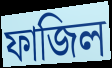
ফাজিল